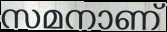
സമനാണ്